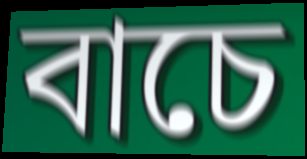
বাচে